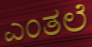
ಎಂತಲೆ